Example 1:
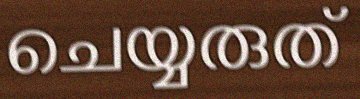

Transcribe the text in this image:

ചെയ്യരുത്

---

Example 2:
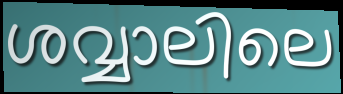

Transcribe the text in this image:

ശവ്വാലിലെ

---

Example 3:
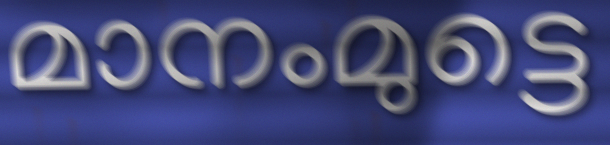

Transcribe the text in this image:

മാനംമുട്ടെ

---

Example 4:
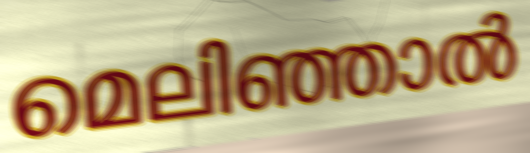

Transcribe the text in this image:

മെലിഞ്ഞാൽ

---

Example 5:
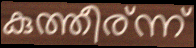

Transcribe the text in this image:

കുത്തീര്ന്ന്